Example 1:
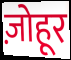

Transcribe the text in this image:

ज़ोहूर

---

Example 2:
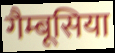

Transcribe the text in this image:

गैम्बूसिया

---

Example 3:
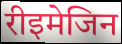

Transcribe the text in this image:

रीइमेजिन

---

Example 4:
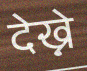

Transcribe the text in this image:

देख्ने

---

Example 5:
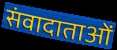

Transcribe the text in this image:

संवादाताओं